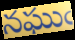
నఘుఁ